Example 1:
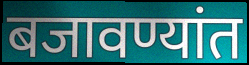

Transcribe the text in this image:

बजावण्यांत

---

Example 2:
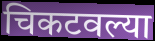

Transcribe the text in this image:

चिकटवल्या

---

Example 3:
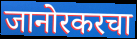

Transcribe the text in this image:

जानोरकरचा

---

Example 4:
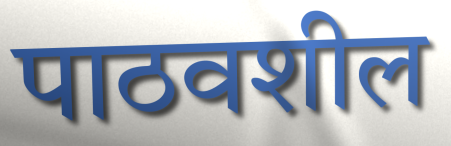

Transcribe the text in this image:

पाठवशील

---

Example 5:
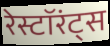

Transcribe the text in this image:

रेस्टॉरंट्स